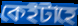
কেইটাহে